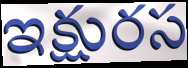
ఇక్షురస